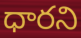
ధారని